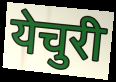
येचुरी